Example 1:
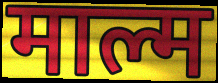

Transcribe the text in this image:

माल्म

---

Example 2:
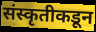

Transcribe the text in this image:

संस्कृतीकडून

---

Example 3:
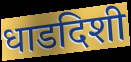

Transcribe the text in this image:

धाडदिशी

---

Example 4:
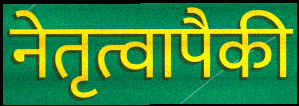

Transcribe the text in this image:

नेतृत्वापैकी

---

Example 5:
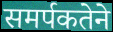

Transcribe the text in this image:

समर्पकतेने